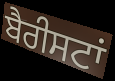
ਬੈਰੀਸਟਾਂ